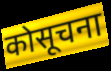
कोसूचना